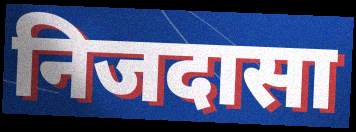
निजदासा